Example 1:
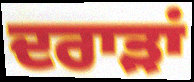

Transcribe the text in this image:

ਦਰਾੜਾਂ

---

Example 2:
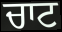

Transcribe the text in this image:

ਚਾਟ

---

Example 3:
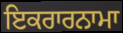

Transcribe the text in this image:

ਇਕਰਾਰਨਾਮਾ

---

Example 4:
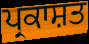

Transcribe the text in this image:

ਪ੍ਰਕਾਸ਼ਤ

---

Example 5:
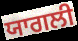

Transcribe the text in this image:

ਯਾਗਲੀ